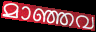
മാഞ്ഞവ